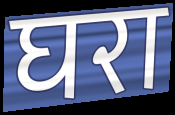
घरा